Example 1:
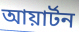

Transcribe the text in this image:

আয়ার্টন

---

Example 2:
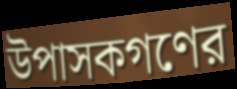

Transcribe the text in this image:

উপাসকগণের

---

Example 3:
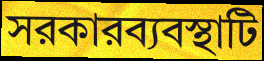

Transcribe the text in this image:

সরকারব্যবস্থাটি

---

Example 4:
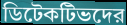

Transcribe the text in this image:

ডিটেকটিভদের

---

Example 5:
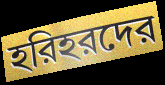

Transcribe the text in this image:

হরিহরদের